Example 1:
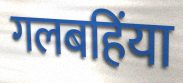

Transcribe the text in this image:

गलबहिंया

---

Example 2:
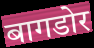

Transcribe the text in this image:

बागडोर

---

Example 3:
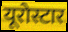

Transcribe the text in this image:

यूरोस्टार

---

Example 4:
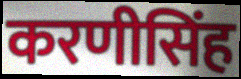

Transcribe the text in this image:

करणीसिंह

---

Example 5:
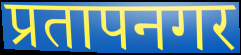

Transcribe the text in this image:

प्रतापनगर